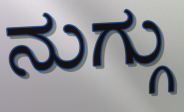
ನುಗ್ಗು